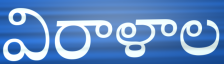
విరాళాల